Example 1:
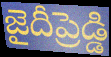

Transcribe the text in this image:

జైదీప్రెడ్డి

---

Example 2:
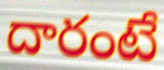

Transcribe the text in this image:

దారంటే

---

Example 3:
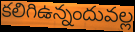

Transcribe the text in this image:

కలిగిఉన్నందువల్ల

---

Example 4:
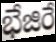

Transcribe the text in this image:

భేజిరే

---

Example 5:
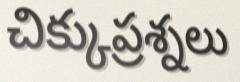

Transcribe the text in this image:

చిక్కుప్రశ్నలు